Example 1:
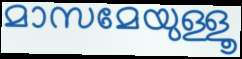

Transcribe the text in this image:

മാസമേയുള്ളൂ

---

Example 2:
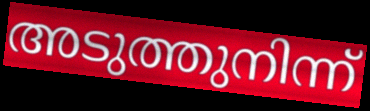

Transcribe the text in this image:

അടുത്തുനിന്ന്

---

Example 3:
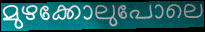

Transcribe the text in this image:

മുഴക്കോലുപോലെ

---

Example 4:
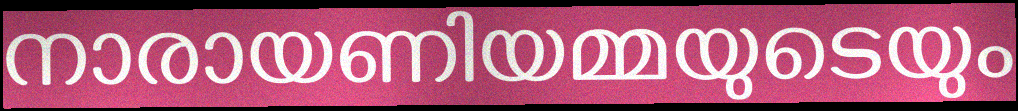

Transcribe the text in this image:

നാരായണിയമ്മയുടെയും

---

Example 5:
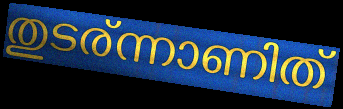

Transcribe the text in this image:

തുടര്ന്നാണിത്